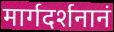
मार्गदर्शनानं